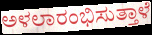
ಅಳಲಾರಂಭಿಸುತ್ತಾಳೆ